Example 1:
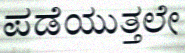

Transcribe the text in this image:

ಪಡೆಯುತ್ತಲೇ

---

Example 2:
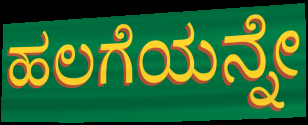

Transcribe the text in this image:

ಹಲಗೆಯನ್ನೇ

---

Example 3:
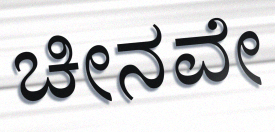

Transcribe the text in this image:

ಚೀನವೇ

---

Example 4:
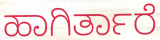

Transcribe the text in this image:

ಹಾಗಿರ್ತಾರೆ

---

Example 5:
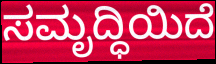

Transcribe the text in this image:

ಸಮೃದ್ಧಿಯಿದೆ